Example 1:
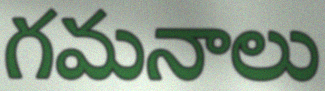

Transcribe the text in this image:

గమనాలు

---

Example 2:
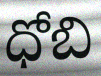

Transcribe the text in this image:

ధోబి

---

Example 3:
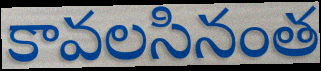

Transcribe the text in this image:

కావలసినంత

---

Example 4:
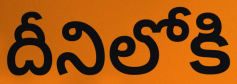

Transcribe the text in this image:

దీనిలోకి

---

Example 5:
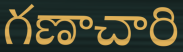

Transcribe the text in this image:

గణాచారి